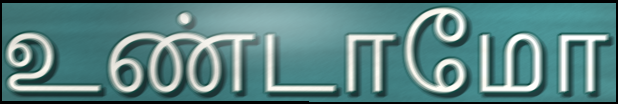
உண்டாமோ